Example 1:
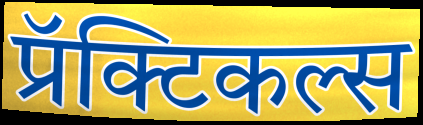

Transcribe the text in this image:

प्रॅक्टिकल्स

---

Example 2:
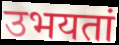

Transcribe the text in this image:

उभयतां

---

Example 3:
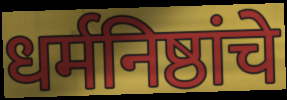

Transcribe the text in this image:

धर्मनिष्ठांचे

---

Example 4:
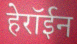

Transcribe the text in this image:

हेरॉईन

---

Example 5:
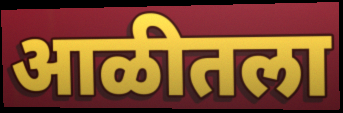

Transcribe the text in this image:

आळीतला